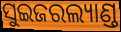
ସୁଇଜରଲ୍ୟାଣ୍ଡ